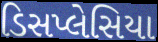
ડિસપ્લેસિયા